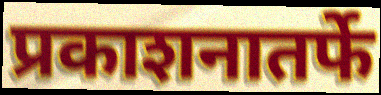
प्रकाशनातर्फे